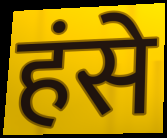
हंसे